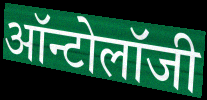
ऑन्टोलॉजी